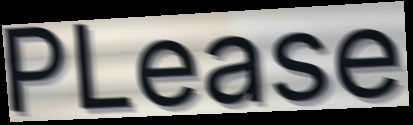
PLease